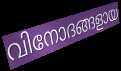
വിനോദങ്ങളായ